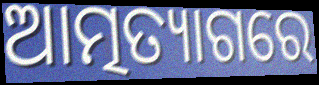
ଆତ୍ମତ୍ୟାଗରେ